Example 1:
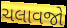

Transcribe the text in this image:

ચલાવજો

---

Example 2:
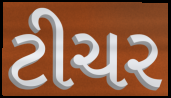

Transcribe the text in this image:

ટીચર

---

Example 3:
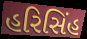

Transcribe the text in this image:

હરિસિંહ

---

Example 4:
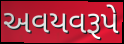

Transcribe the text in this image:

અવયવરૂપે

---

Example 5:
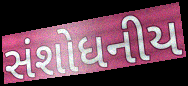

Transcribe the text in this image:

સંશોધનીય